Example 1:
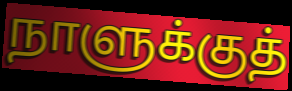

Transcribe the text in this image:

நாளுக்குத்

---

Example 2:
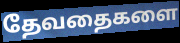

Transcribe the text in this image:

தேவதைகளை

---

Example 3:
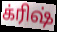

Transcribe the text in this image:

க்ரிஷ்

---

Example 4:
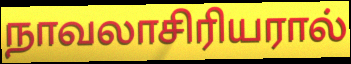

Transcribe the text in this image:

நாவலாசிரியரால்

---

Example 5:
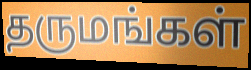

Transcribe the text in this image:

தருமங்கள்